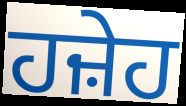
ਹਜ਼ੇਹ